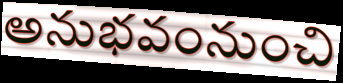
అనుభవంనుంచి